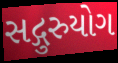
સદ્ગુરુયોગ